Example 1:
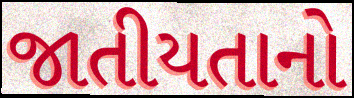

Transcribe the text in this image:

જાતીયતાનો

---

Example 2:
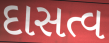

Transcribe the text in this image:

દાસત્વ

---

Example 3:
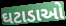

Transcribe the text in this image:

ઘટાડાઓ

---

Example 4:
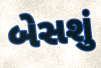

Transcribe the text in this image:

બેસશું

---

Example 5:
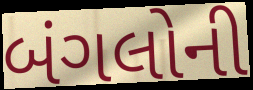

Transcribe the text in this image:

બંગલોની